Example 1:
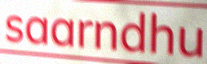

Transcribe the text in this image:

saarndhu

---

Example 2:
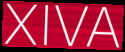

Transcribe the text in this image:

XIVA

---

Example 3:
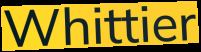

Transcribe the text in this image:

Whittier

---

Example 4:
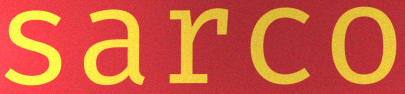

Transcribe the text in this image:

sarco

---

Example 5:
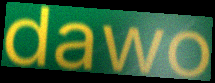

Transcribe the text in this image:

dawo